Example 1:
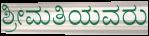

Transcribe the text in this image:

ಶ್ರೀಮತಿಯವರು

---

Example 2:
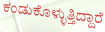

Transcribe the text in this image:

ಕಂಡುಕೊಳ್ಳುತ್ತಿದ್ದಾರೆ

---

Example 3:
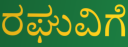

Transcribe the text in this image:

ರಘುವಿಗೆ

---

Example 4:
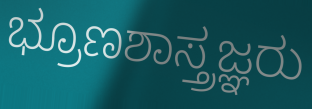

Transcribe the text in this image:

ಭ್ರೂಣಶಾಸ್ತ್ರಜ್ಞರು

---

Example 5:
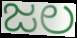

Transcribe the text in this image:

ಜಲ